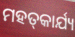
ମହତ୍‌କାର୍ଯ୍ୟ